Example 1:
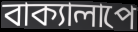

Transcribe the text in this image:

বাক্যালাপে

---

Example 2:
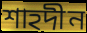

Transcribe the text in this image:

শাহদীন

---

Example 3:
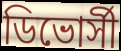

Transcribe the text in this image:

ডিভোর্সী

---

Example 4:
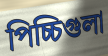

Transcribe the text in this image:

পিচ্চিগুলা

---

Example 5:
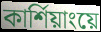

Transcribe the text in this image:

কার্শিয়াংয়ে